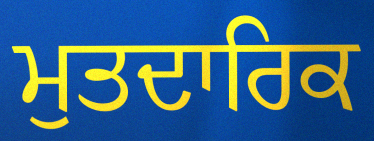
ਮੁਤਦਾਰਿਕ